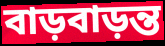
বাড়বাড়ন্ত